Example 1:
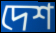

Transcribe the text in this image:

দেশ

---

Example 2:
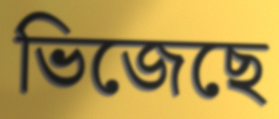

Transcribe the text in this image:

ভিজেছে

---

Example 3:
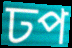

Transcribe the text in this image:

ঢপ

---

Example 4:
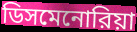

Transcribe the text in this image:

ডিসমেনোরিয়া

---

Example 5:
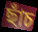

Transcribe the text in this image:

ছাঁচ